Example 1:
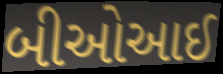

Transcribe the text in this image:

બીઓઆઈ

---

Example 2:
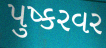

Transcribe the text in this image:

પુષ્કરવર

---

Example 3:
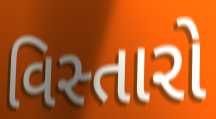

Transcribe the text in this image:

વિસ્તારો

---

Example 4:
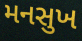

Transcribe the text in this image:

મનસુખ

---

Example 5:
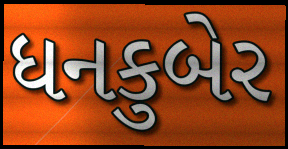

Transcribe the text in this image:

ધનકુબેર